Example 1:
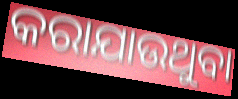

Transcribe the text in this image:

କରାଯାଉଥୁବା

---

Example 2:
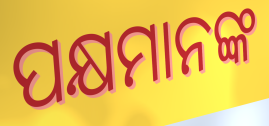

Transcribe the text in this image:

ପକ୍ଷମାନଙ୍କ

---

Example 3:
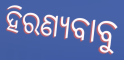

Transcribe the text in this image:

ହିରଣ୍ୟବାବୁ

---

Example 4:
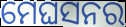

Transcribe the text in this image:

ମେଘସନର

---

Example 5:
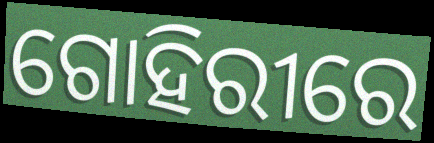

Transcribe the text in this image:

ଗୋହିରୀରେ